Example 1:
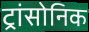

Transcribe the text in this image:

ट्रांसोनिक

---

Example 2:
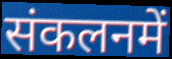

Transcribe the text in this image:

संकलनमें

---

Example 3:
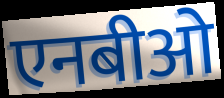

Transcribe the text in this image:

एनबीओ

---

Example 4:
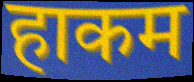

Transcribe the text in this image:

हाकम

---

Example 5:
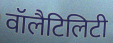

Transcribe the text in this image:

वॉलैटिलिटी